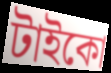
টাইকো